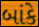
બાંકે